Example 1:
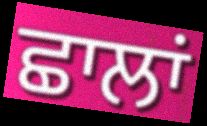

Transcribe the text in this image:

ਛਾਲਾਂ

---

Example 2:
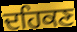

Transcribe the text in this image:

ਦਹਿਕਣ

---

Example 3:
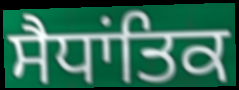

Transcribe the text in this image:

ਸੈਧਾਂਤਿਕ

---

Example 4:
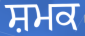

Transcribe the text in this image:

ਸ਼ਮਕ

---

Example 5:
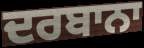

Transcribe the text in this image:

ਦਰਬਾਨਾ